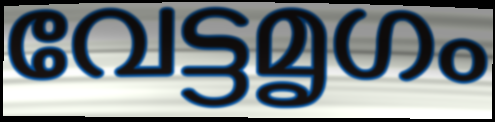
വേട്ടമൃഗം